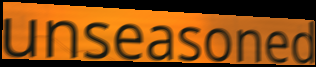
unseasoned